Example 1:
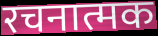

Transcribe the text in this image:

रचनात्मक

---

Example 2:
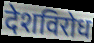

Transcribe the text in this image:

देशविरोध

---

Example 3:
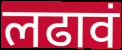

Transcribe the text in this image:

लढावं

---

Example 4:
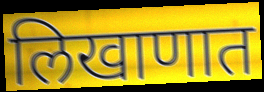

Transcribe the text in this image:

लिखाणात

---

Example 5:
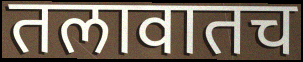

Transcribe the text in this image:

तलावातच